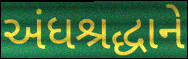
અંધશ્રદ્ધાને